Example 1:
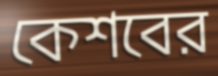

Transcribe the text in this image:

কেশবের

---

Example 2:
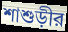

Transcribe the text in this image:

শাশুড়ীর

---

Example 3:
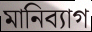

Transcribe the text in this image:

মানিব্যাগ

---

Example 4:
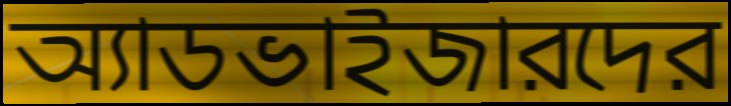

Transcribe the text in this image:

অ্যাডভাইজারদের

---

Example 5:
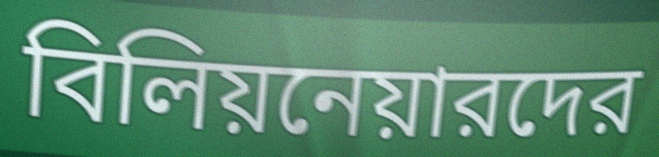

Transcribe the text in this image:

বিলিয়নেয়ারদের